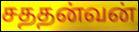
சததன்வன்